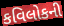
કવિલોકની